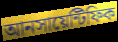
আনসায়েন্টিফিক